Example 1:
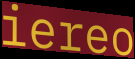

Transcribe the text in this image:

iereo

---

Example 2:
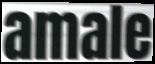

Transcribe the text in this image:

amale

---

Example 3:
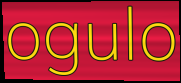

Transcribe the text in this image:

ogulo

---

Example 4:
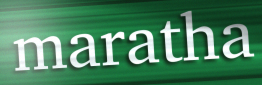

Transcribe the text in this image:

maratha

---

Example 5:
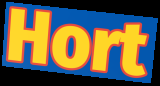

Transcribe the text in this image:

Hort